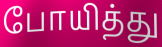
போயித்து